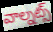
వాల్నట్స్